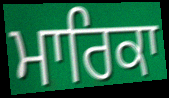
ਮਾਰਿਕਾ